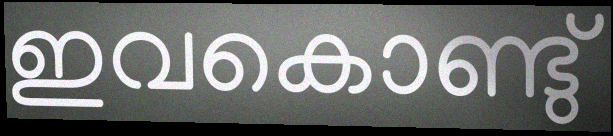
ഇവകൊണ്ടു്